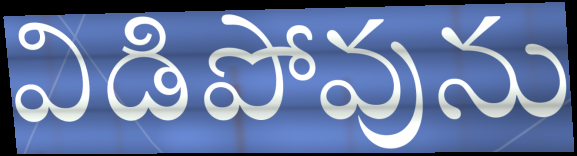
విడిపోవును